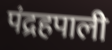
पंद्रहपाली